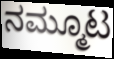
ನಮ್ಮೂಟ